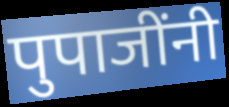
पुपाजींनी